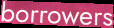
borrowers